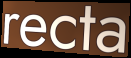
recta